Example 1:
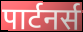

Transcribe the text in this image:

पार्टनर्स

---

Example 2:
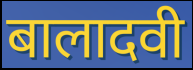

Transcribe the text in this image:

बालादवी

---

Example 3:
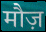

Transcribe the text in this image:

मौज़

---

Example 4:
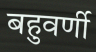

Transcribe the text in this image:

बहुवर्णी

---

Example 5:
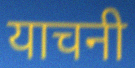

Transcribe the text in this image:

याचनी